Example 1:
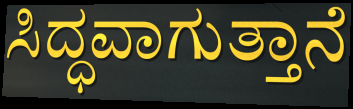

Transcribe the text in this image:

ಸಿದ್ಧವಾಗುತ್ತಾನೆ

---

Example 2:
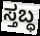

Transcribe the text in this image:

ಸ್ತಬ್ಧ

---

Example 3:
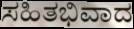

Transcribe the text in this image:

ಸಹಿತಭಿವಾದ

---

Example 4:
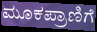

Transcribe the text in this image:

ಮೂಕಪ್ರಾಣಿಗೆ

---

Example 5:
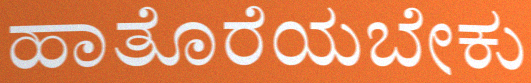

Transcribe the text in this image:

ಹಾತೊರೆಯಬೇಕು